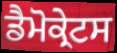
ਡੈਮੋਕ੍ਰੇਟਸ